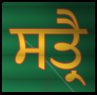
ਸਤ੍ਰੈ